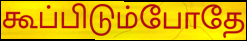
கூப்பிடும்போதே